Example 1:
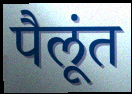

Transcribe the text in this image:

पैलूंत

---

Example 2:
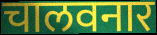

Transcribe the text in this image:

चालवनार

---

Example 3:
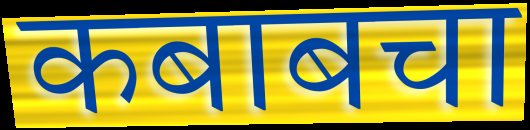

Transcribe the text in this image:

कबाबचा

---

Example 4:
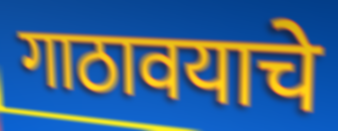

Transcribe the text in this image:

गाठावयाचे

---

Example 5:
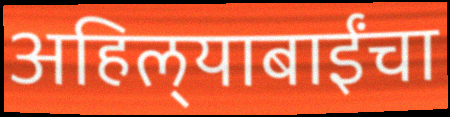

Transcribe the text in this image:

अहिल्याबाईंचा